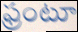
ఫ్రంటూ